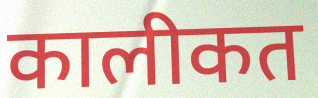
कालीकत